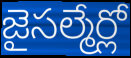
జైసల్మేర్లో